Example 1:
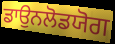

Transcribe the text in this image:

ਡਾਉਨਲੋਡਯੋਗ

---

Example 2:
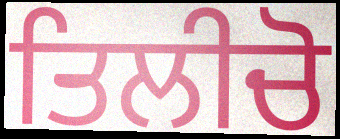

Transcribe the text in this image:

ਤਿਲੀਚੋ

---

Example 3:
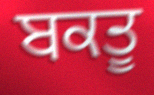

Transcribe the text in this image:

ਬਕਤੂ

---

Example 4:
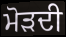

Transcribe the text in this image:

ਮੋੜਦੀ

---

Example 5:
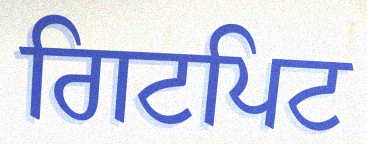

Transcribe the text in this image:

ਗਿਟਪਿਟ